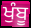
ਖੁੰਬੂ